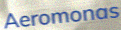
Aeromonas